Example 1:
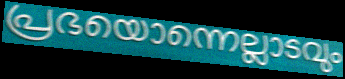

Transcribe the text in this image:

പ്രഭയൊന്നെല്ലാടവും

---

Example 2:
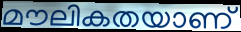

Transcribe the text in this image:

മൗലികതയാണ്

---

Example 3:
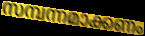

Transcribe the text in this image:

സമ്പന്നമാക്കണം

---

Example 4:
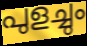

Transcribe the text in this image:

പുളച്ചും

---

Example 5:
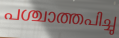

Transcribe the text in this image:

പശ്ചാത്തപിച്ചു